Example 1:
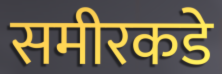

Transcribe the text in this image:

समीरकडे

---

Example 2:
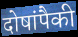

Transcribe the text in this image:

दोषांपैकी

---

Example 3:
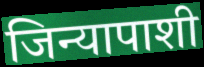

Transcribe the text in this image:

जिन्यापाशी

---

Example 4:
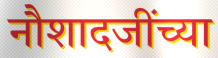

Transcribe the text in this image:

नौशादजींच्या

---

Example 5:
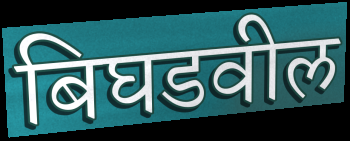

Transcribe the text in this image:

बिघडवील